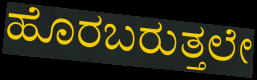
ಹೊರಬರುತ್ತಲೇ